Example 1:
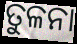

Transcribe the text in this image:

ତୁଳନା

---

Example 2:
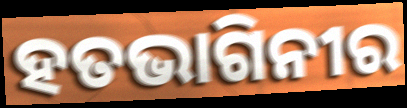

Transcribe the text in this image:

ହତଭାଗିନୀର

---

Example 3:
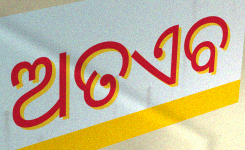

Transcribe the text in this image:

ଅତଏବ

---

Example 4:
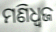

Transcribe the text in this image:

ମଣିଧ୍ୱଜ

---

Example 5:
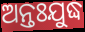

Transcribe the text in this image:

ଅନ୍ତଃଯୁଦ୍ଧ